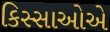
કિસ્સાઓએ